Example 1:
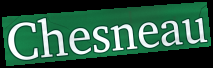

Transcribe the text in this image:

Chesneau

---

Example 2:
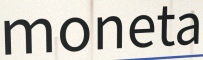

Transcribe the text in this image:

moneta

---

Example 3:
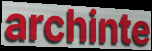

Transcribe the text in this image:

archinte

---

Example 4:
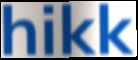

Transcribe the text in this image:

hikk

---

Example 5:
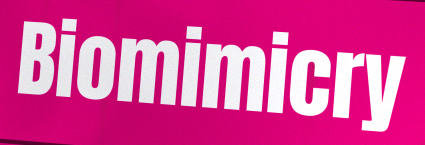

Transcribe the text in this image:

Biomimicry